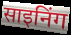
साइनिंग